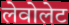
लेवोलेट